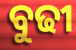
ବୁଢୀ